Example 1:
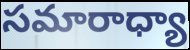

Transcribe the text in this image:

సమారాధ్యా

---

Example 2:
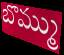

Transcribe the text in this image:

బొమ్ము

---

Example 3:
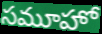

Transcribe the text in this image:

సమూహో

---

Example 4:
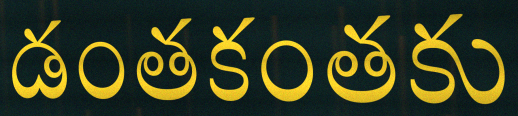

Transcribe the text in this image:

డంతకంతకు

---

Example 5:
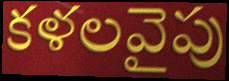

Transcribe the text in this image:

కళలవైపు